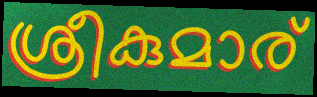
ശ്രീകുമാര്